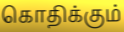
கொதிக்கும்